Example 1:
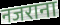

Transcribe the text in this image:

नजराना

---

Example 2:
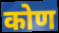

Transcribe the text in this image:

कोण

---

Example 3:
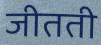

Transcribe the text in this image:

जीतती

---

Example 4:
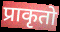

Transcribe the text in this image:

प्राकृतो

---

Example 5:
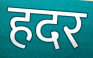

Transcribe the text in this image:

हदर